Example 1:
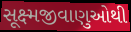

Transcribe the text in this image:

સૂક્ષ્મજીવાણુઓથી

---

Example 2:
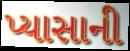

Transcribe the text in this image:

પ્યાસાની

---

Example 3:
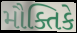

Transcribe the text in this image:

મૌક્તિકે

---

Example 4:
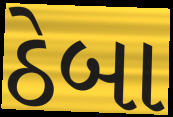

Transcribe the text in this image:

ઠેબા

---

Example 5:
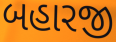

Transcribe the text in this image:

બહારજી